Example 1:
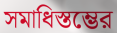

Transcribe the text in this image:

সমাধিস্তম্ভের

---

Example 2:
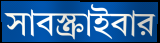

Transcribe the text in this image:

সাবস্ক্রাইবার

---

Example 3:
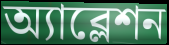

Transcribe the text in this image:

অ্যাব্লেশন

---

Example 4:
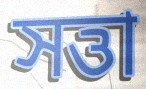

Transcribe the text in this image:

সত্তা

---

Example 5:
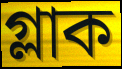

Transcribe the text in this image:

গ্লাক